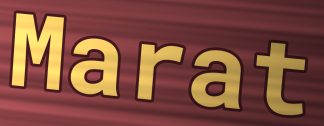
Marat